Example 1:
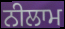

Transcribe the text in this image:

ਨੀਲਾਮ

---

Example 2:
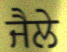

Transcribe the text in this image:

ਜੈਲੇ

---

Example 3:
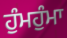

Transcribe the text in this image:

ਹੁੰਮਹੁੰਮਾ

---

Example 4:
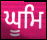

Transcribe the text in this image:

ਘੂਮਿ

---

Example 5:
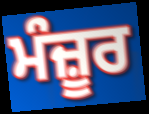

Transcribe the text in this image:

ਮੰਜ਼ੂਰ